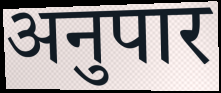
अनुपार